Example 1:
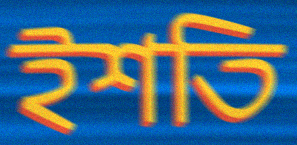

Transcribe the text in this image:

ইশতি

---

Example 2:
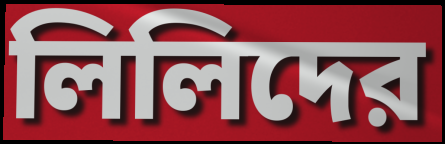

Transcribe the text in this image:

লিলিদের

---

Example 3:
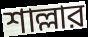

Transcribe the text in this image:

শাল্লার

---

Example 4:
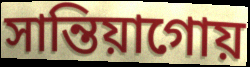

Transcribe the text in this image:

সান্তিয়াগোয়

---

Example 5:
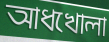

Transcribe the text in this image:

আধখোলা